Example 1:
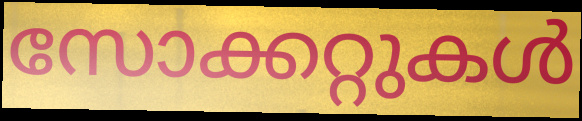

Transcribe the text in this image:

സോക്കറ്റുകൾ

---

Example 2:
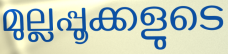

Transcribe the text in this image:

മുല്ലപ്പൂക്കളുടെ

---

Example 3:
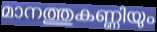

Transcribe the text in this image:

മാനത്തുകണ്ണിയും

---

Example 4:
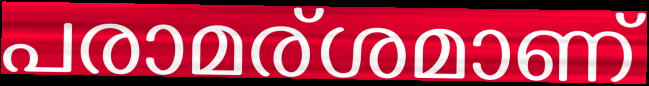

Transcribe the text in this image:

പരാമര്ശമാണ്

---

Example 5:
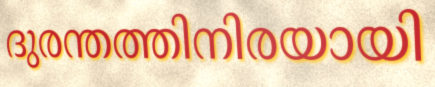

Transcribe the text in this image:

ദുരന്തത്തിനിരയായി